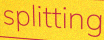
splitting